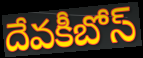
దేవకీబోస్